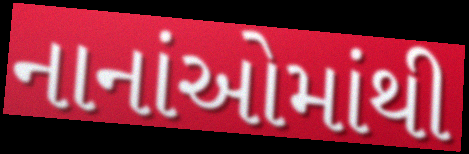
નાનાંઓમાંથી